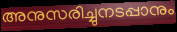
അനുസരിച്ചുനടപ്പാനും